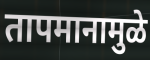
तापमानामुळे